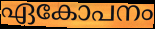
ഏകോപനം